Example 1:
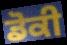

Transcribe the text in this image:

ਡੋਕੀ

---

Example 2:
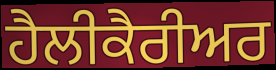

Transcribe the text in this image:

ਹੈਲੀਕੈਰੀਅਰ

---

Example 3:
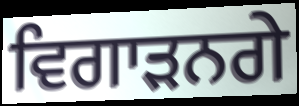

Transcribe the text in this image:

ਵਿਗਾੜਨਗੇ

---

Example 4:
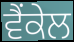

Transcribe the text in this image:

ਵੈਂਕੇਲ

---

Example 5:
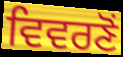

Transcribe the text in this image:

ਵਿਵਰਣੋਂ